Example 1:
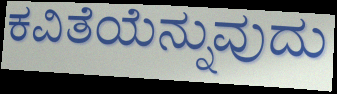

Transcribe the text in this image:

ಕವಿತೆಯೆನ್ನುವುದು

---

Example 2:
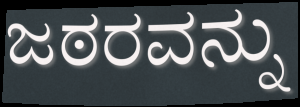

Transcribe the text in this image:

ಜಠರವನ್ನು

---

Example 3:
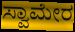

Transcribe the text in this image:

ಸ್ವಾಮೇರ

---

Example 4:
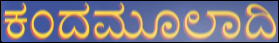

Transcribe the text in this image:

ಕಂದಮೂಲಾದಿ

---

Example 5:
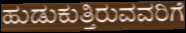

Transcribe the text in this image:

ಹುಡುಕುತ್ತಿರುವವರಿಗೆ